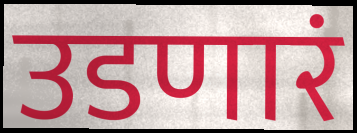
उडणारं